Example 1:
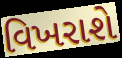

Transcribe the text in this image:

વિખરાશે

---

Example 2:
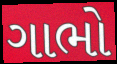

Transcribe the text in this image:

ગાભો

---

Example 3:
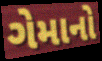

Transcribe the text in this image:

ગેમાનો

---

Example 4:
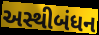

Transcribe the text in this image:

અસ્થીબંધન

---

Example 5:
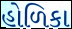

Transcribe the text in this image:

હોળિકા